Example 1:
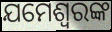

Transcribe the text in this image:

ଯମେଶ୍ୱରଙ୍କ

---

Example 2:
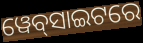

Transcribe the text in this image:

ୱେବ୍‍ସାଇଟରେ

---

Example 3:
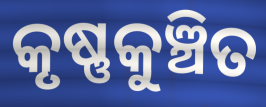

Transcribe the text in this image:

କୃଷ୍ଣକୁଞ୍ଚିତ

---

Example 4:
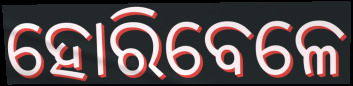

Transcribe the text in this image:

ହୋରିବେଳେ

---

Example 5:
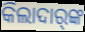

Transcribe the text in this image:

କିଲାଦାର୍‍ଙ୍କ